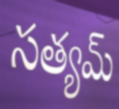
సత్యమ్